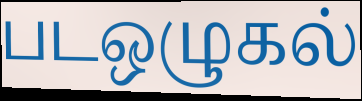
படஒழுகல்